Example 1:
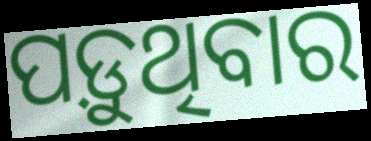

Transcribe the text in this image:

ପଡ଼ୁଥିବାର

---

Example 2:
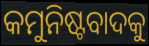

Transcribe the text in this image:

କମୁନିଷ୍ଟବାଦକୁ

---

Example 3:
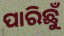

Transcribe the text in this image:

ପାରିଛୁଁ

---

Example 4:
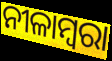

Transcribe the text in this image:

ନୀଳାମ୍ବରା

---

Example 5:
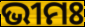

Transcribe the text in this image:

ଭୀମଃ